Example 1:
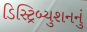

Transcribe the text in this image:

ડિસ્ટ્રિબ્યુશનનું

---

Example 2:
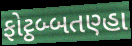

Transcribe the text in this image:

ફોટ્ઠબ્બતણ્હા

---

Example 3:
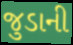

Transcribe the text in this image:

જુડાની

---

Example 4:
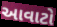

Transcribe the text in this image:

આવાટો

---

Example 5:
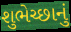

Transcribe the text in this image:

શુભેચ્છાનું